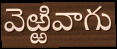
వెఱ్ఱివాగు